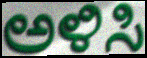
ಅಳಿಸಿ